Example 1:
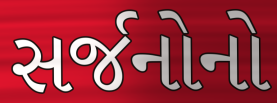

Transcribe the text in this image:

સર્જનોનો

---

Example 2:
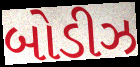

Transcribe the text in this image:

બોડીઝ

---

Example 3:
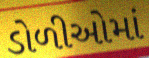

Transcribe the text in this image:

ડોળીઓમાં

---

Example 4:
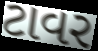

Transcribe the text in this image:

ટાવર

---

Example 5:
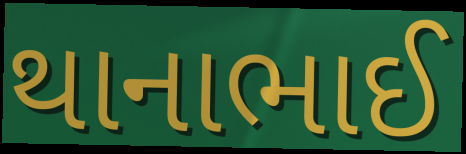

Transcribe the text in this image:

થાનાભાઈ